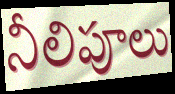
నీలిపూలు